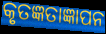
କୃତଜ୍ଞତାଜ୍ଞାପନ